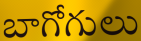
బాగోగులు